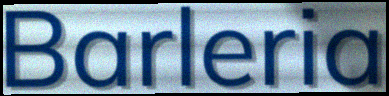
Barleria